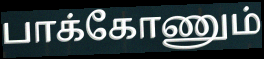
பாக்கோணும்